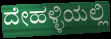
ದೇಹಳ್ಳಿಯಲ್ಲಿ